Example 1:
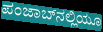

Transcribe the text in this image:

ಪಂಜಾಬ್‌ನಲ್ಲಿಯೂ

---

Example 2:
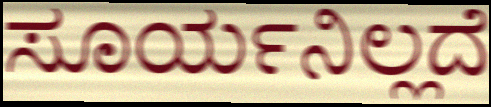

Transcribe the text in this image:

ಸೂರ್ಯನಿಲ್ಲದೆ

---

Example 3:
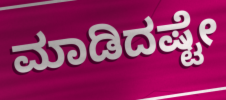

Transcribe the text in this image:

ಮಾಡಿದಷ್ಟೇ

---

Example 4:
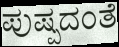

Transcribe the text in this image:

ಪುಷ್ಪದಂತೆ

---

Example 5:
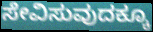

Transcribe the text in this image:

ಸೇವಿಸುವುದಕ್ಕೂ